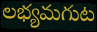
లభ్యమగుట